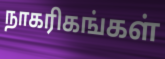
நாகரிகங்கள்